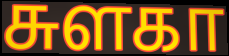
சுளகா